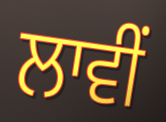
ਲਾਵੀਂ